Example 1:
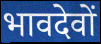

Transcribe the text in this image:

भावदेवों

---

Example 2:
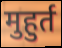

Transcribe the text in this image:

मुहुर्त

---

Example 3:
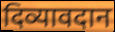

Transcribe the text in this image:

दिव्यावदान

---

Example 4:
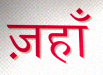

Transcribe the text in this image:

ज़हाँ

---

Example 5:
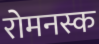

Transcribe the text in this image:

रोमनस्क